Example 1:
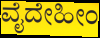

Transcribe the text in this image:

ವೈದೇಹೀಂ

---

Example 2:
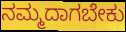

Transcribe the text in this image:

ನಮ್ಮದಾಗಬೇಕು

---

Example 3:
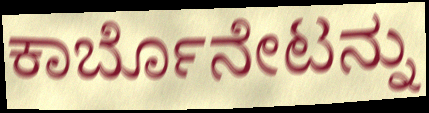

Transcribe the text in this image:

ಕಾರ್ಬೊನೇಟನ್ನು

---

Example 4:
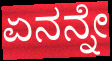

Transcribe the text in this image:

ಏನನ್ನೇ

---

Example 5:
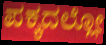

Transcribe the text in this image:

ಪಕ್ಕದಲ್ಲೋ